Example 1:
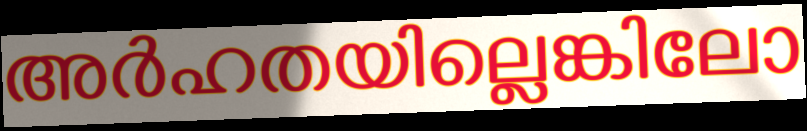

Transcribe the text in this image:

അർഹതയില്ലെങ്കിലോ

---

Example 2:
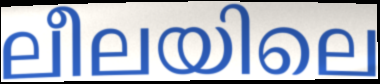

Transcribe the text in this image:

ലീലയിലെ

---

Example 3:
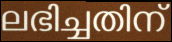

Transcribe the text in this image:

ലഭിച്ചതിന്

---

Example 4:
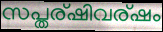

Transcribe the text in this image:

സപ്തര്ഷിവര്ഷം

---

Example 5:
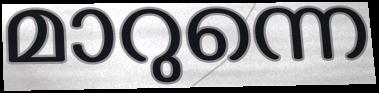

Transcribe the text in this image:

മാറുന്നെ